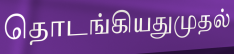
தொடங்கியதுமுதல்